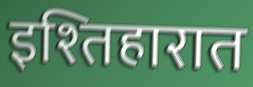
इश्तिहारात